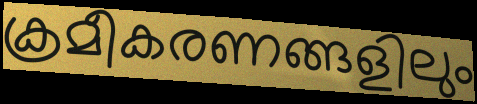
ക്രമീകരണങ്ങളിലും